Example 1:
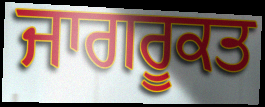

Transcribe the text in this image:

ਜਾਗਰੂਕਤ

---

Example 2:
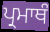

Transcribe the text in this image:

ਪ੍ਰਮਾਥੰ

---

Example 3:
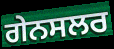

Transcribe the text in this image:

ਗੇਨਸਲਰ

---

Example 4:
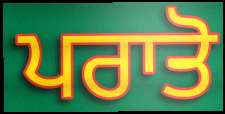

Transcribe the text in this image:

ਪਰਾਤੋ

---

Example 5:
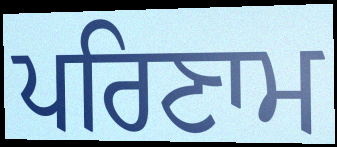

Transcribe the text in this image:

ਪਰਿਣਾਮ